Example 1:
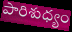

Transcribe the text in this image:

పారిశుధ్యం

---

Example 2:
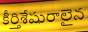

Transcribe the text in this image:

కీర్తిశేషురాలైన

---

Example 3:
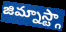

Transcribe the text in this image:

జిమ్నాస్ట్గా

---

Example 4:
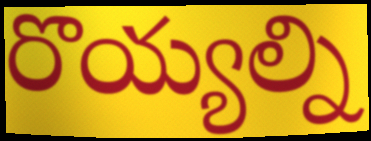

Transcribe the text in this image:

రొయ్యల్ని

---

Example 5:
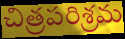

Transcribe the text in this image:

చిత్రపరిశ్రమ